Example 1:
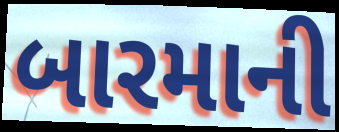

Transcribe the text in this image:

બારમાની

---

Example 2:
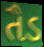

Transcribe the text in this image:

તૈડ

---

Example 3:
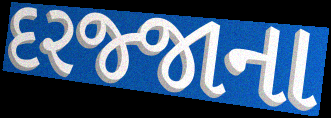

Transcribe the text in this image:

દરજ્જાના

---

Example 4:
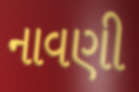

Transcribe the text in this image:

નાવણી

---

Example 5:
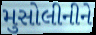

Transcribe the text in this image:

મુસોલીનીને